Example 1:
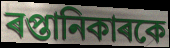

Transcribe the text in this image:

ৰপ্তানিকাৰকে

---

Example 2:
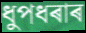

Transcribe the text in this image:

ধুপধৰাৰ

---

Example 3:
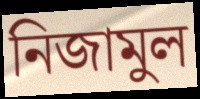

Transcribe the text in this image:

নিজামুল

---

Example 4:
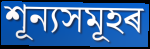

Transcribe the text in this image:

শূন্যসমূহৰ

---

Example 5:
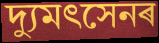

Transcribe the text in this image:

দ্যুমৎসেনৰ